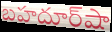
బహదూర్‌షా